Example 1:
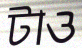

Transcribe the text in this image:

টাও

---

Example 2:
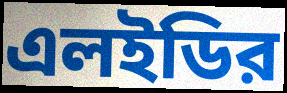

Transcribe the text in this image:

এলইডির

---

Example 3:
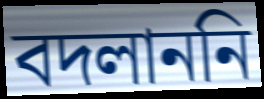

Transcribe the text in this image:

বদলাননি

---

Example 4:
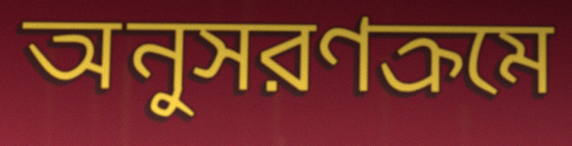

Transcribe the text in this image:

অনুসরণক্রমে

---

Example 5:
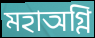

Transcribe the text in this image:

মহাঅগ্নি